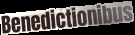
Benedictionibus